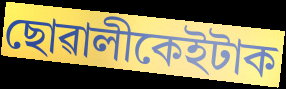
ছোৱালীকেইটাক